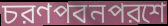
চরণপবনপরশে